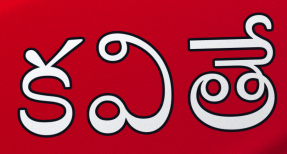
కవితే